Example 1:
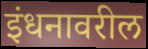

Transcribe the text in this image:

इंधनावरील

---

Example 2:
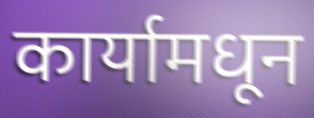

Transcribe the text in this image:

कार्यामधून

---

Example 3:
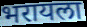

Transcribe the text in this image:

भरायला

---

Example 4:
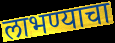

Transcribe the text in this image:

लाभण्याचा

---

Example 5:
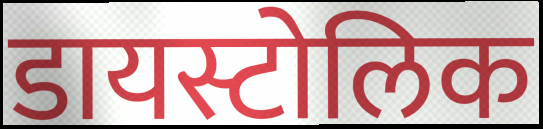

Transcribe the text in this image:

डायस्टोलिक